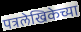
पत्रलेखिकेच्या